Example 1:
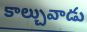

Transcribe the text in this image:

కాల్చువాడు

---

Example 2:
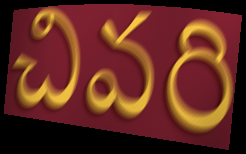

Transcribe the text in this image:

చివరి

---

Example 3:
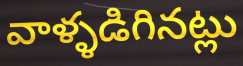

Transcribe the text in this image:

వాళ్ళడిగినట్లు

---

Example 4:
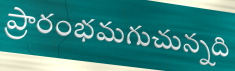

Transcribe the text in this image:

ప్రారంభమగుచున్నది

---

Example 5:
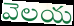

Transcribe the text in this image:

వెలయ